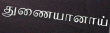
துணையானாய்